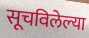
सूचविलेल्या